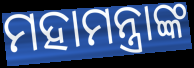
ମହାମନ୍ତ୍ରାଙ୍କ